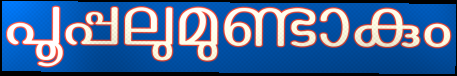
പൂപ്പലുമുണ്ടാകും